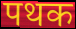
पथक